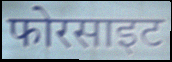
फोरसाइट